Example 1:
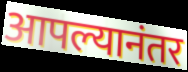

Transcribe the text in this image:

आपल्यानंतर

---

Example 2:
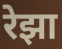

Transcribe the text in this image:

रेझा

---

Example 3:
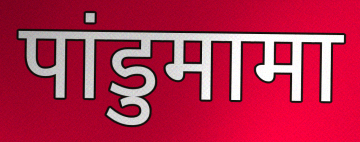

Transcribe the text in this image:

पांडुमामा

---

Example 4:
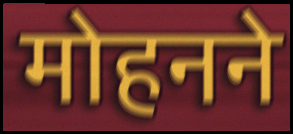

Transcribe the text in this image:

मोहनने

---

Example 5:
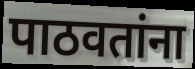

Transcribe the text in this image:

पाठवतांना